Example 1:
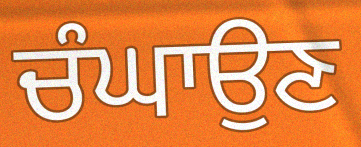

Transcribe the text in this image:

ਚੰਘਾਉਣ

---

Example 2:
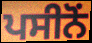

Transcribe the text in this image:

ਪਸੀਨੋਂ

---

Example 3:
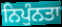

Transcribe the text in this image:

ਨਿਪੁੰਨਤਾ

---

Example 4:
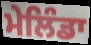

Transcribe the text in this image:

ਮੇਲਿੰਡਾ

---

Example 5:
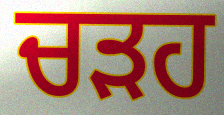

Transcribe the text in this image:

ਚੜਹ